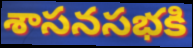
శాసనసభకి